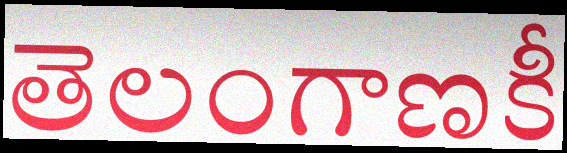
తెలంగాణకీ